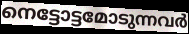
നെട്ടോട്ടമോടുന്നവർ